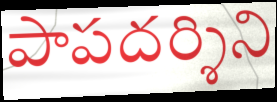
పాపదర్శిని